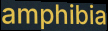
amphibia